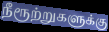
நீரூற்றுகளுக்கு